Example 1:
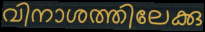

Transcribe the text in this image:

വിനാശത്തിലേക്കു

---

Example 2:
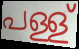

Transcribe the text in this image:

പള്ള്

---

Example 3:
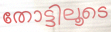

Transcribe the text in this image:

തോട്ടിലൂടെ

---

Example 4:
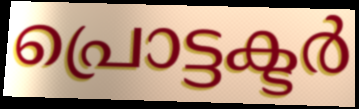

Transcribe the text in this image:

പ്രൊട്ടക്ടർ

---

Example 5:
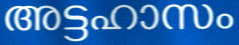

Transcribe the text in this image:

അട്ടഹാസം